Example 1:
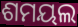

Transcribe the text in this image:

ଶମୟଲ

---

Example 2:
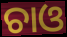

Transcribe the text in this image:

ଚାଓ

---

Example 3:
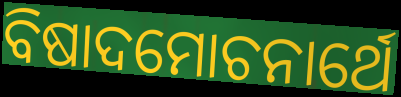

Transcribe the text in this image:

ବିଷାଦମୋଚନାର୍ଥେ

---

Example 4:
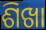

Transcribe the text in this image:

ଶିଖା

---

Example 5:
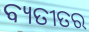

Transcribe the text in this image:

ବ୍ୟତୀତର